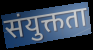
संयुक्तता